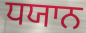
ਧਯਾਨ